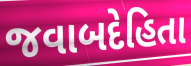
જવાબદેહિતા